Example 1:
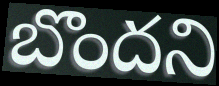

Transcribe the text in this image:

బొందని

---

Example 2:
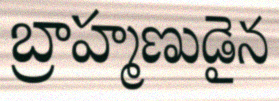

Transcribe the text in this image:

బ్రాహ్మణుడైన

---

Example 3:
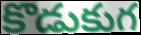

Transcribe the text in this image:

కొడుకుగ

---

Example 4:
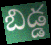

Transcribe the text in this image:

బిడ్డ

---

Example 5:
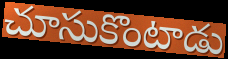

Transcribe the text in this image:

చూసుకొంటాడు